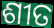
ଶୀତ